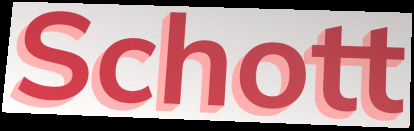
Schott